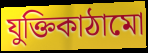
যুক্তিকাঠামো